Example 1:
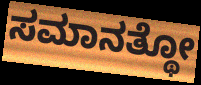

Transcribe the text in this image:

ಸಮಾನತ್ಥೋ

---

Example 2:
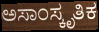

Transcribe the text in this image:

ಅಸಾಂಸ್ಕೃತಿಕ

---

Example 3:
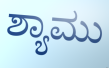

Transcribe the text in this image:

ಶ್ಯಾಮು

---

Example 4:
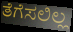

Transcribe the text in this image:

ತೆಗೆಸಲಿಲ್ಲ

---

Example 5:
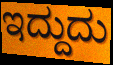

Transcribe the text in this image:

ಇದ್ದುದು